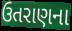
ઉતરાણના